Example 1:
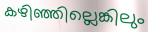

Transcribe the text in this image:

കഴിഞ്ഞില്ലെങ്കിലും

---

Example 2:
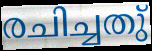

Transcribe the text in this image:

രചിച്ചതു്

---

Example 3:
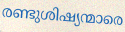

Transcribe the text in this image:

രണ്ടുശിഷ്യന്മാരെ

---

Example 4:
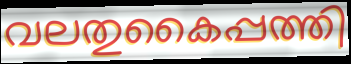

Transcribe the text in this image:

വലതുകൈപ്പത്തി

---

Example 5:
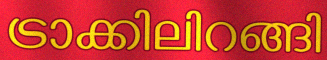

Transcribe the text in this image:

ട്രാക്കിലിറങ്ങി